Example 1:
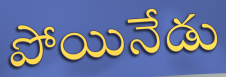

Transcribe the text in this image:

పోయినేడు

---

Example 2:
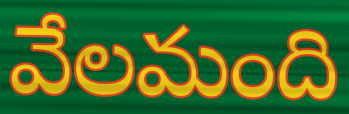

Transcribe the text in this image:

వేలమంది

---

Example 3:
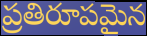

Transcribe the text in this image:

ప్రతిరూపమైన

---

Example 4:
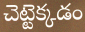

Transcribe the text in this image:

చెట్టెక్కడం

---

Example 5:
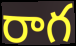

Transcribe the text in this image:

రాగ